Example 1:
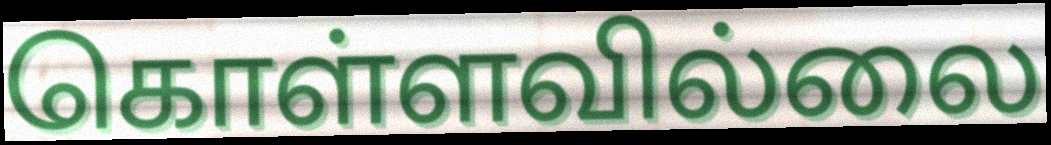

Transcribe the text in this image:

கொள்ளவில்லை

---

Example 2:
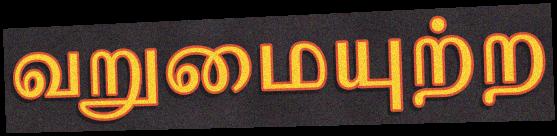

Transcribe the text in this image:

வறுமையுற்ற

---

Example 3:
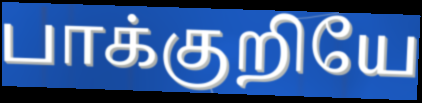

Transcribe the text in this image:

பாக்குறியே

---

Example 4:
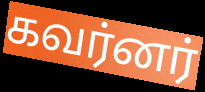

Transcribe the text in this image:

கவர்னர்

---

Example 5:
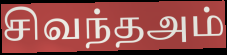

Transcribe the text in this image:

சிவந்தஅம்